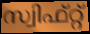
സ്വിഫ്റ്റ്